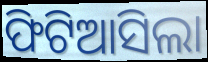
ଫିଟିଆସିଲା